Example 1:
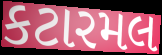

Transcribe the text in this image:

કટારમલ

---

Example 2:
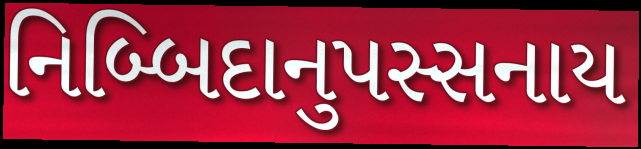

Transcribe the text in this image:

નિબ્બિદાનુપસ્સનાય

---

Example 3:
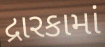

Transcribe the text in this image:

દ્રારકામાં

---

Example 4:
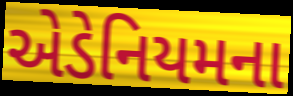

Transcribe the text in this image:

એડેનિયમના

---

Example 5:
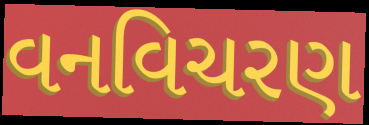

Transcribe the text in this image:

વનવિચરણ